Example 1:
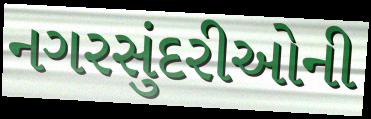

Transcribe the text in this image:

નગરસુંદરીઓની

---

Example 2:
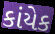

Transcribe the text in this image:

કાંયેક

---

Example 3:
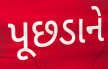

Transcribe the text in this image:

પૂછડાને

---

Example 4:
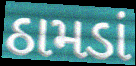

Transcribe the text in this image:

ઠામડાં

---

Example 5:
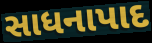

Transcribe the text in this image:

સાધનાપાદ